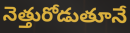
నెత్తురోడుతూనే